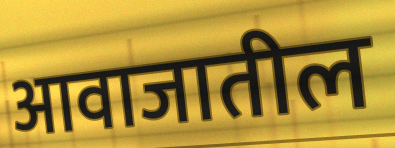
आवाजातील